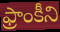
ఫ్రాంకీని